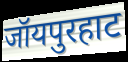
जॉयपुरहाट